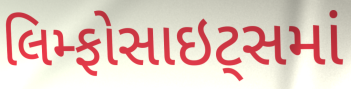
લિમ્ફોસાઇટ્સમાં